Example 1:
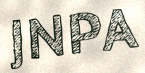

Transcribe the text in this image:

JNPA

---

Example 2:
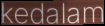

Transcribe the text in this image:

kedalam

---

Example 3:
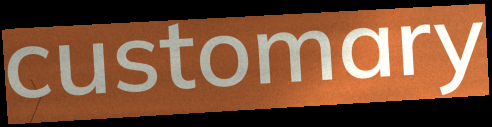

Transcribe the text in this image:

customary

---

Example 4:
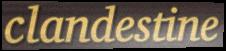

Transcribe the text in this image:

clandestine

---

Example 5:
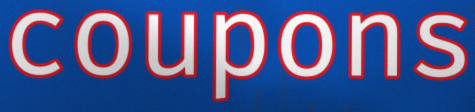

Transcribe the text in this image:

coupons